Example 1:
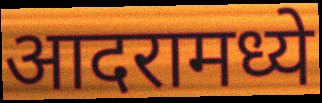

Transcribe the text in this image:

आदरामध्ये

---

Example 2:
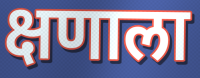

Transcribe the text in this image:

क्षणाला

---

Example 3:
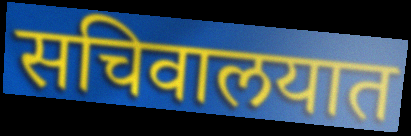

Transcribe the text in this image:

सचिवालयात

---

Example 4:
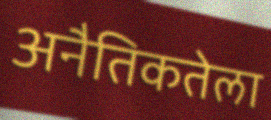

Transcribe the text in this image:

अनैतिकतेला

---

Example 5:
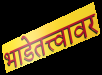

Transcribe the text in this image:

भाडेतत्त्वावर